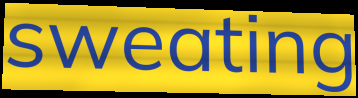
sweating